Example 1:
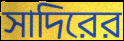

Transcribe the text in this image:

সাদিরের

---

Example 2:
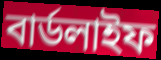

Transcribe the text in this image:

বার্ডলাইফ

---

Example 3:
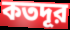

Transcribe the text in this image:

কতদূর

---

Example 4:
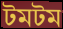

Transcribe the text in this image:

টমটম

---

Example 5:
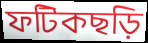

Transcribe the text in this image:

ফটিকছড়ি